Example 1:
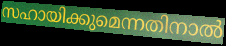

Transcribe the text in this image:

സഹായിക്കുമെന്നതിനാൽ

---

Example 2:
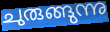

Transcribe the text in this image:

ചുരുങ്ങുന്നു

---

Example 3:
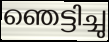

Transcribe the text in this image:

ഞെട്ടിച്ചു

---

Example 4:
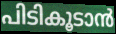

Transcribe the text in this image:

പിടികൂടാൻ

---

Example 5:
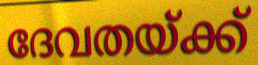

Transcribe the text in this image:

ദേവതയ്ക്ക്